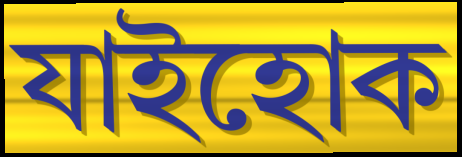
যাইহোক